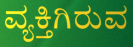
ವ್ಯಕ್ತಿಗಿರುವ